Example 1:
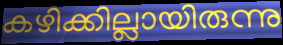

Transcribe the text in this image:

കഴിക്കില്ലായിരുന്നു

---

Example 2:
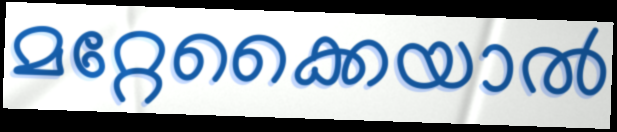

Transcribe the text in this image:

മറ്റേക്കൈയാൽ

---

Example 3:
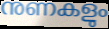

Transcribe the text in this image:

നുണകളും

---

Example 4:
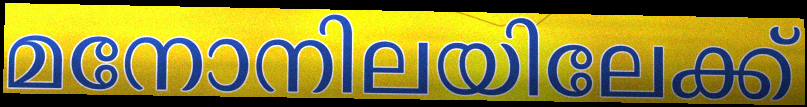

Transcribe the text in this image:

മനോനിലയിലേക്ക്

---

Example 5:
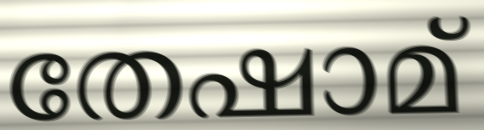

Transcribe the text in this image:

തേഷാമ്